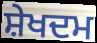
ਸ਼ੇਖਦਮ